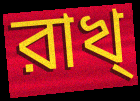
রাখ্